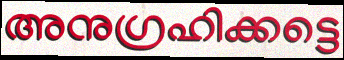
അനുഗ്രഹിക്കട്ടെ